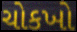
ચોકખો